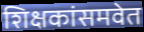
शिक्षकांसमवेत